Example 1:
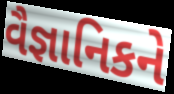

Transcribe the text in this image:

વૈજ્ઞાનિકને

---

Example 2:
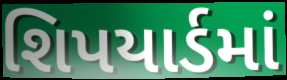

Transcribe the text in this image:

શિપયાર્ડમાં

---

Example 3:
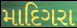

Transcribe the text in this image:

માદિગરા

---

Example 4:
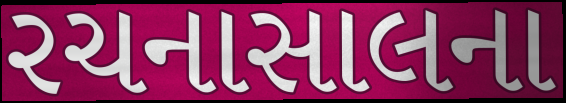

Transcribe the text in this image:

રચનાસાલના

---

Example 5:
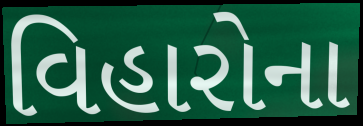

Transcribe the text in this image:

વિહારોના